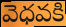
వెధవకి